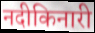
नदीकिनारी